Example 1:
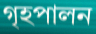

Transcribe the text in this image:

গৃহপালন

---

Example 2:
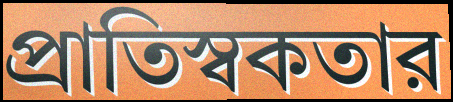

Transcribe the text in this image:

প্রাতিস্বকতার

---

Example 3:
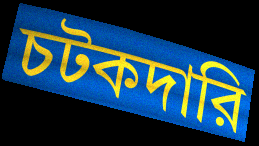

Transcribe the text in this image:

চটকদারি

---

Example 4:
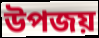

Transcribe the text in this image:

উপজয়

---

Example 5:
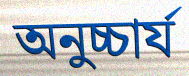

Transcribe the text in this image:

অনুচ্চার্য